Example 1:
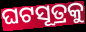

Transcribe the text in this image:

ଘଟସୂତ୍ରକୁ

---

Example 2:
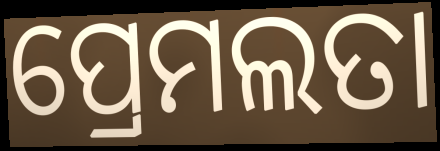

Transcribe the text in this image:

ପ୍ରେମଲତା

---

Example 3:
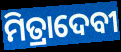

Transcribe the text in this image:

ମିତ୍ରାଦେବୀ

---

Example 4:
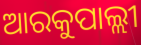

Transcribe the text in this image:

ଆରକୁପାଲ୍ଲୀ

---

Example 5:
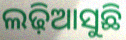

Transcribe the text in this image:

ଲଢ଼ିଆସୁଛି